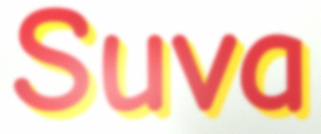
Suva